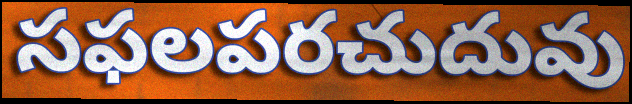
సఫలపరచుదువు